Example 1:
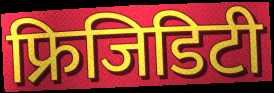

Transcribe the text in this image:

फ्रिजिडिटी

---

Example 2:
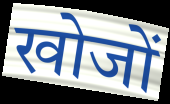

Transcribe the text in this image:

खोजों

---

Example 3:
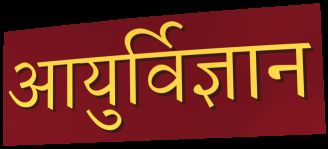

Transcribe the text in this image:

आयुर्विज्ञान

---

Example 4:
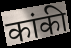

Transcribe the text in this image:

कांकी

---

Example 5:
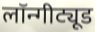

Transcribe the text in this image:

लॉन्गीट्यूड